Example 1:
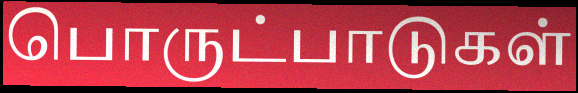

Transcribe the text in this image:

பொருட்பாடுகள்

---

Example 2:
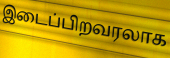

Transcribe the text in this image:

இடைப்பிறவரலாக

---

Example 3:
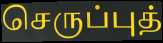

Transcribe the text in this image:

செருப்புத்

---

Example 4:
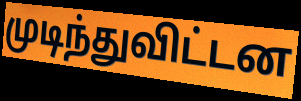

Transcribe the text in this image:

முடிந்துவிட்டன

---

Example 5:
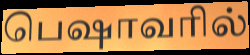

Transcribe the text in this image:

பெஷாவரில்